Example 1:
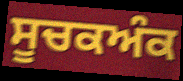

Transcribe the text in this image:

ਸੂਚਕਅੰਕ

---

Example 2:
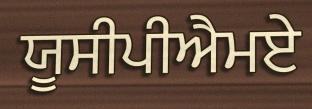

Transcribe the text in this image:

ਯੂਸੀਪੀਐਮਏ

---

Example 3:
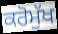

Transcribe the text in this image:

ਕਰੋਮੁੱਖ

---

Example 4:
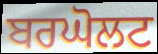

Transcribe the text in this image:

ਬਰਘੋਲਟ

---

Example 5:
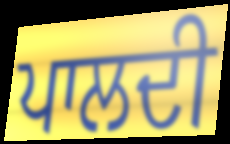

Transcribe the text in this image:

ਪਾਲਦੀ